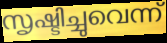
സൃഷ്ടിച്ചുവെന്ന്